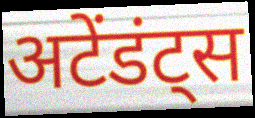
अटेंडंट्स